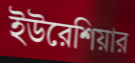
ইউরেশিয়ার